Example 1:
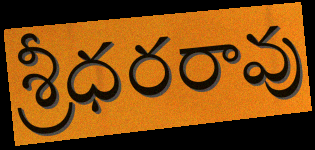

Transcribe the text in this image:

శ్రీధరరావు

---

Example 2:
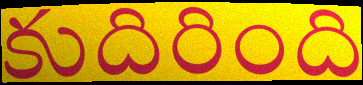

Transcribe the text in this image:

కుదిరింది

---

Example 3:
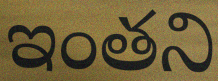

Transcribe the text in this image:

ఇంతని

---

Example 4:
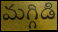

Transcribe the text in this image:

మగ్గిడి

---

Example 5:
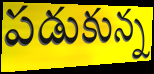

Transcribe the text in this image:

పడుకున్న